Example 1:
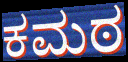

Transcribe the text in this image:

ಕಮಠ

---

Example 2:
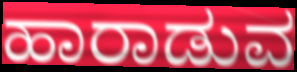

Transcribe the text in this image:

ಹಾರಾಡುವ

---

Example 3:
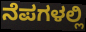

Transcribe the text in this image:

ನೆಪಗಳಲ್ಲಿ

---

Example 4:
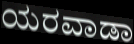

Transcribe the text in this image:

ಯರವಾಡಾ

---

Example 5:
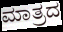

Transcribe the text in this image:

ಮಾತ್ರದ